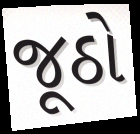
જૂઠો